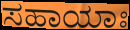
ಸಹಾಯಾಃ